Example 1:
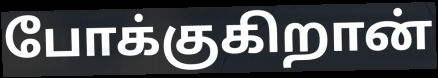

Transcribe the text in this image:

போக்குகிறான்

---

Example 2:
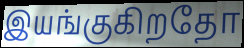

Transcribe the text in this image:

இயங்குகிறதோ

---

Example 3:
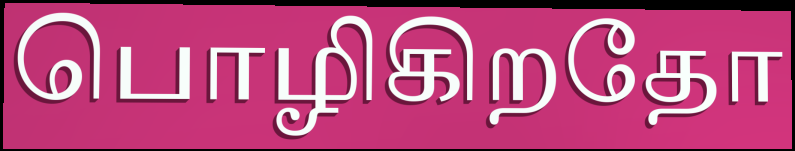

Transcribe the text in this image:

பொழிகிறதோ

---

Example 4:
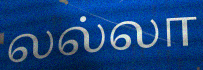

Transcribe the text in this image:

லல்லா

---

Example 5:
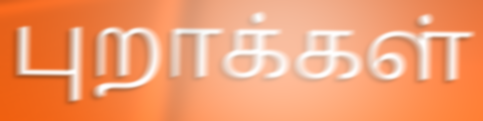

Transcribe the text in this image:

புறாக்கள்